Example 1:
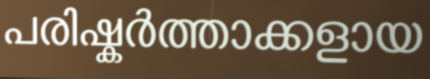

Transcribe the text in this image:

പരിഷ്കർത്താക്കളായ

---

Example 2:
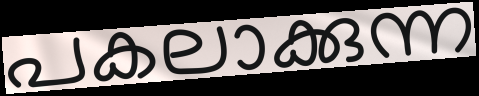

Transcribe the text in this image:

പകലാക്കുന്ന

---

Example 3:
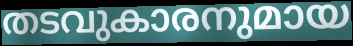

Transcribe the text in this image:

തടവുകാരനുമായ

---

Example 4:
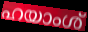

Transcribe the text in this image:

ഹയാംശ്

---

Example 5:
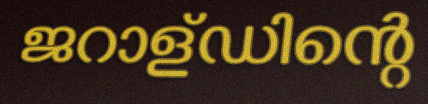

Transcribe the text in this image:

ജറാള്ഡിന്റെ